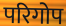
परिगोप